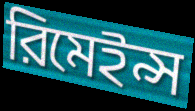
রিমেইন্স